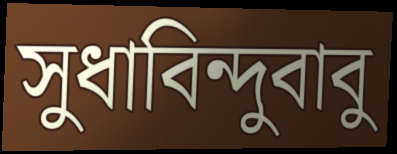
সুধাবিন্দুবাবু